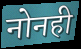
नोनही